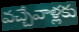
వచ్చేవాళ్లకు